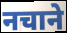
नचाने